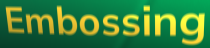
Embossing